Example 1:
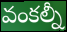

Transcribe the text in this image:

వంకల్నీ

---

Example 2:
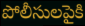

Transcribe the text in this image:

పోలీసులపైకి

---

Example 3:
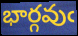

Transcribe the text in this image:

భార్గవుఁ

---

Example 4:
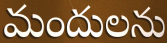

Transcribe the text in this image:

మందులను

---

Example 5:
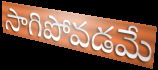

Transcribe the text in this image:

సాగిపోవడమే